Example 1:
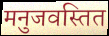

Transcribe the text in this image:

मनुजवस्तित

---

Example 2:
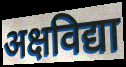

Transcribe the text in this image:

अक्षविद्या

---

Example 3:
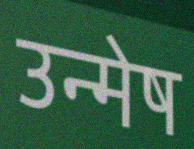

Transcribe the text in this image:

उन्मेष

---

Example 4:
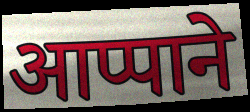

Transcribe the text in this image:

आप्पाने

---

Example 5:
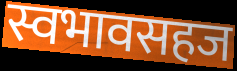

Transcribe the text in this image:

स्वभावसहज